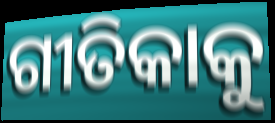
ଗୀତିକାକୁ